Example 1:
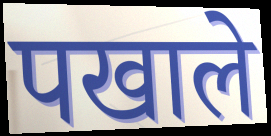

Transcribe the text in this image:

पखाले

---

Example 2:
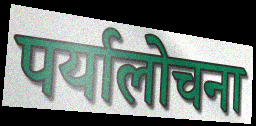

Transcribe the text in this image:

पर्यालोचना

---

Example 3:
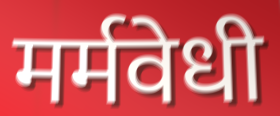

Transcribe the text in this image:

मर्मवेधी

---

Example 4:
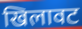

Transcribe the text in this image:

खिलावट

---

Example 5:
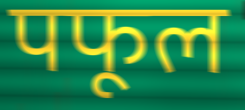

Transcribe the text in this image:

पफूल